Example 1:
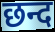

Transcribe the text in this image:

छन्द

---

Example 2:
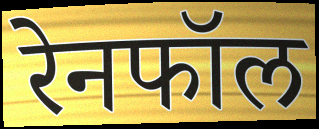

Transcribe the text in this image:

रेनफॉल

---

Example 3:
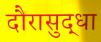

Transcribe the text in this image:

दौरासुद्धा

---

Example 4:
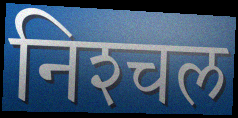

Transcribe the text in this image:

निश्चल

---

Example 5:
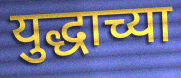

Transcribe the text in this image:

युद्धाच्या